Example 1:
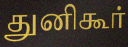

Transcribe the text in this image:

துனிகூர்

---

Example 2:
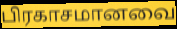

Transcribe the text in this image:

பிரகாசமானவை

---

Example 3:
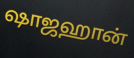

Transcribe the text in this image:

ஷாஜஹான்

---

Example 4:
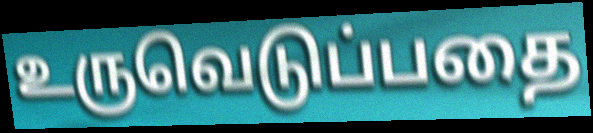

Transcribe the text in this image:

உருவெடுப்பதை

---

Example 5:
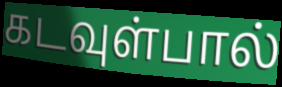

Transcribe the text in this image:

கடவுள்பால்